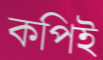
কপিই